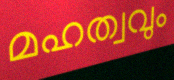
മഹത്വവും